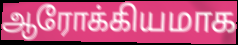
ஆரோக்கியமாக